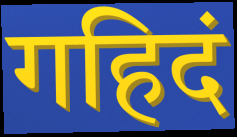
गहिदं